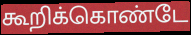
கூறிக்கொண்டே